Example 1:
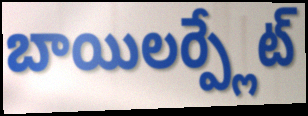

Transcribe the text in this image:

బాయిలర్ప్లేట్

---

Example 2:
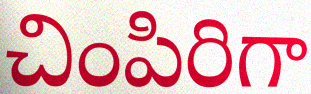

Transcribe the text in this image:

చింపిరిగా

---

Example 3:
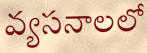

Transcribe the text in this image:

వ్యసనాలలో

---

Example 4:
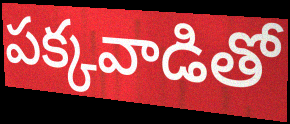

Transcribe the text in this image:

పక్కవాడితో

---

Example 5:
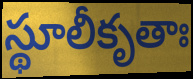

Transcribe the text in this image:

స్థూలీకృతాః